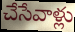
చేసేవాళ్లు